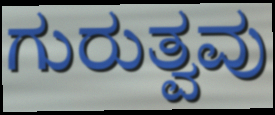
ಗುರುತ್ವವು